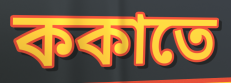
ককাতে